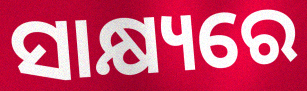
ସାକ୍ଷ୍ୟରେ